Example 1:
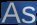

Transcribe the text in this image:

As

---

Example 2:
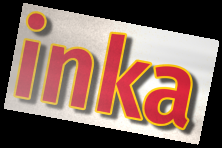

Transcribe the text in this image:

inka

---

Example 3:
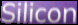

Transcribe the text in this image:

Silicon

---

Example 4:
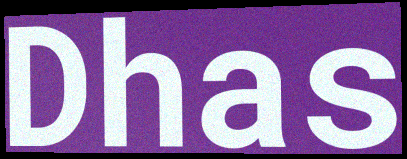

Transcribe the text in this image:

Dhas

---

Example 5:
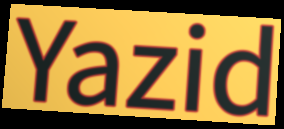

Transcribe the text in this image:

Yazid